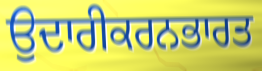
ਉਦਾਰੀਕਰਨਭਾਰਤ